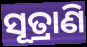
ସୂତ୍ରାଣି